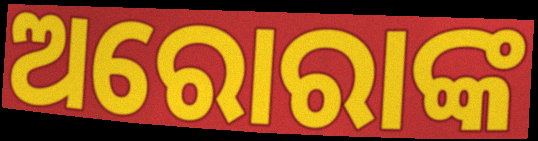
ଅରୋରାଙ୍କ